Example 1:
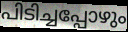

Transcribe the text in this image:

പിടിച്ചപ്പോഴും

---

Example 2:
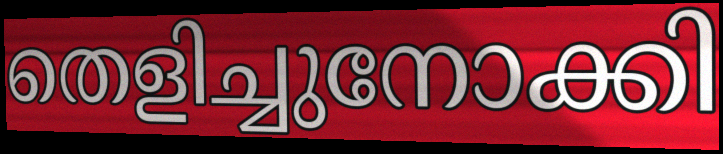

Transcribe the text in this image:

തെളിച്ചുനോക്കി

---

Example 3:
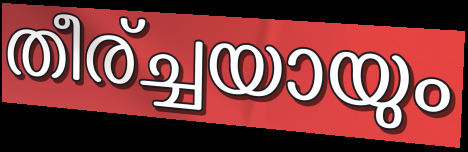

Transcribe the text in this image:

തീര്ച്ചയായും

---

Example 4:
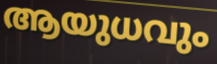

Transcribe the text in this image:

ആയുധവും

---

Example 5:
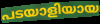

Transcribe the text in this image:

പടയാളിയായ